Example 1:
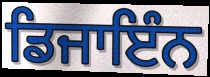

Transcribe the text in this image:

ਡਿਜਾਇੰਨ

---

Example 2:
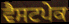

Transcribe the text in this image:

ਵੈਸਟਪੇਕ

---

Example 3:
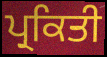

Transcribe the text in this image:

ਪ੍ਰਕਿਤੀ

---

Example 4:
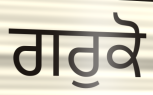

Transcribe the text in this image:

ਗਰੁਕੋ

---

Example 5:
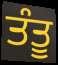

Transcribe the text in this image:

ਤੰਤੂ